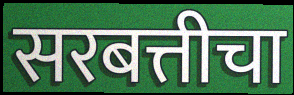
सरबत्तीचा